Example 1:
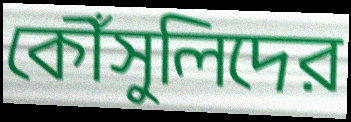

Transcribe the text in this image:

কৌঁসুলিদের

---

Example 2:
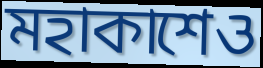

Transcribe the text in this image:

মহাকাশেও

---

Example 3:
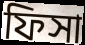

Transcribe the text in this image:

ফিসা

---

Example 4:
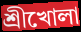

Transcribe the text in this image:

শ্রীখোলা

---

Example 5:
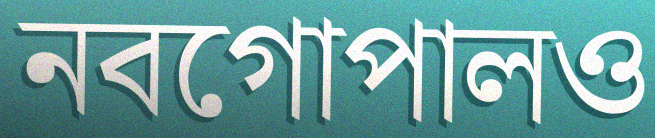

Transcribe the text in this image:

নবগোপালও